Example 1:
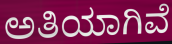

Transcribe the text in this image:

ಅತಿಯಾಗಿವೆ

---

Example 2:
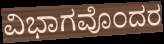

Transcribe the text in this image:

ವಿಭಾಗವೊಂದರ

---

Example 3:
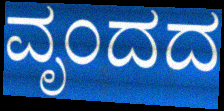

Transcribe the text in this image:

ವೃಂದದ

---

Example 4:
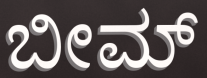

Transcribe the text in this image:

ಬೀಮ್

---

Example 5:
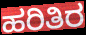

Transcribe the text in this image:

ಹರಿತಿರ